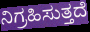
ನಿಗ್ರಹಿಸುತ್ತದೆ